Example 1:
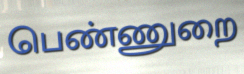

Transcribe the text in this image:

பெண்ணுறை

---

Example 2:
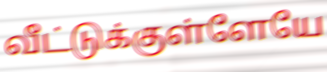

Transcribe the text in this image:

வீட்டுக்குள்ளேயே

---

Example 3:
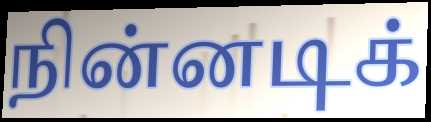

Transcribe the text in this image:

நின்னடிக்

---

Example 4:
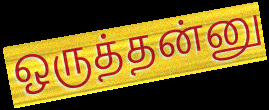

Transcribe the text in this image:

ஒருத்தன்னு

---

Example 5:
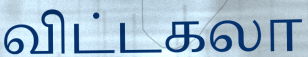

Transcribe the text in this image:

விட்டகலா